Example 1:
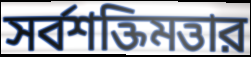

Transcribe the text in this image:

সর্বশক্তিমত্তার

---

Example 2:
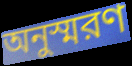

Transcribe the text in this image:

অনুস্মরণ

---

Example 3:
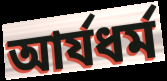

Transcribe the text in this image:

আর্যধর্ম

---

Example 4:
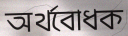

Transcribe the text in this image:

অর্থবোধক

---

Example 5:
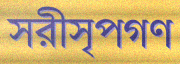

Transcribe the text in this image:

সরীসৃপগণ